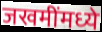
जखमींमध्ये